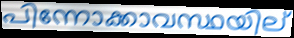
പിന്നോക്കാവസ്ഥയില്